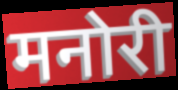
मनोरी